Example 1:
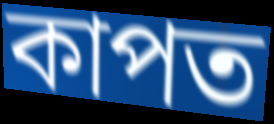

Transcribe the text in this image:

কাপত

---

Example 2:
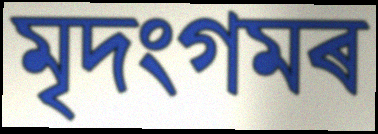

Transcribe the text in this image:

মৃদংগমৰ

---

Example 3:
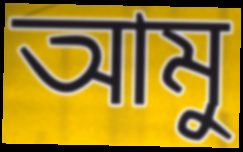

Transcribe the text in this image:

আমু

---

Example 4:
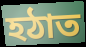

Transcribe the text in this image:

হঠাত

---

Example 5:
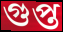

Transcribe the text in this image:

গুপ্ত